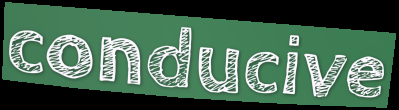
conducive